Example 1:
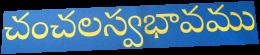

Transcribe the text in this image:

చంచలస్వభావము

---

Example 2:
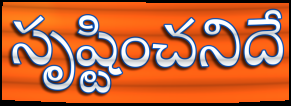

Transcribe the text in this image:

సృష్టించనిదే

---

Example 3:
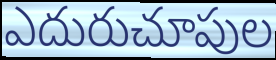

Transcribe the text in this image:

ఎదురుచూపుల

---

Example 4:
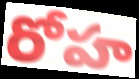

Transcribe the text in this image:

రోహ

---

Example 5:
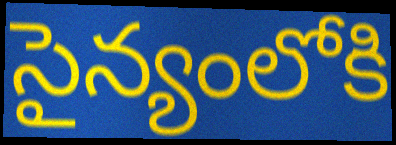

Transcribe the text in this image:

సైన్యంలోకి